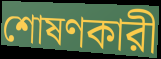
শোষণকারী